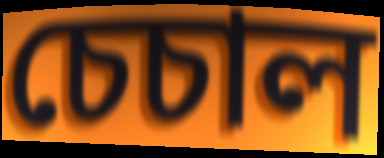
চেচাল